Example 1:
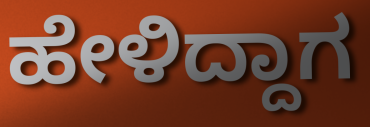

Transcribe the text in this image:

ಹೇಳಿದ್ದಾಗ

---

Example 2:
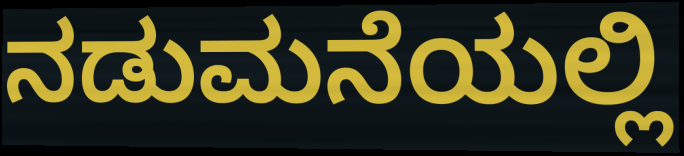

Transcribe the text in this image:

ನಡುಮನೆಯಲ್ಲಿ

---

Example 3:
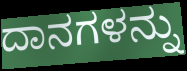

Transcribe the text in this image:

ದಾನಗಳನ್ನು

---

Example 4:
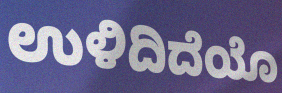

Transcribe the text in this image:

ಉಳಿದಿದೆಯೊ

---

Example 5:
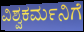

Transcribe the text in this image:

ವಿಶ್ವಕರ್ಮನಿಗೆ